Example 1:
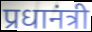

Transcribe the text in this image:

प्रधानंत्री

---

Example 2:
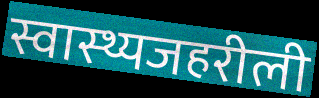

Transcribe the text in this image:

स्वास्थ्यजहरीली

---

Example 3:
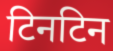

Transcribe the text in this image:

टिनटिन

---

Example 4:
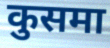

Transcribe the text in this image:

कुसमा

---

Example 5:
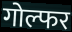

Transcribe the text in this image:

गोल्फर